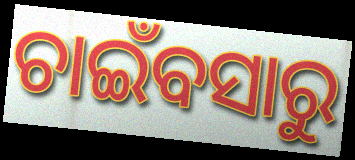
ଚାଇଁବସାରୁ